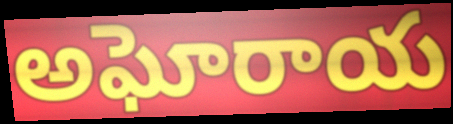
అఘోరాయ